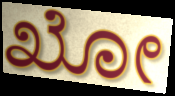
ಖೋ